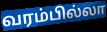
வரம்பில்லா